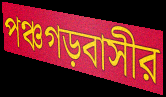
পঞ্চগড়বাসীর